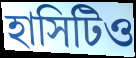
হাসিটিও